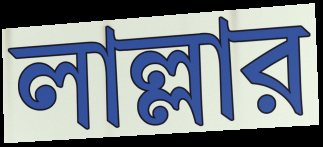
লাল্লার